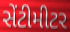
સેંટીમીટર